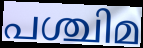
പശ്ചിമ